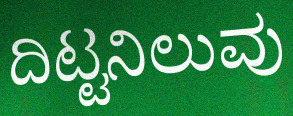
ದಿಟ್ಟನಿಲುವು